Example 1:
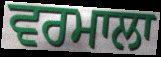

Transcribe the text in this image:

ਵਰਮਾਲਾ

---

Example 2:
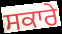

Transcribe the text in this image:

ਸਕਾਰੇ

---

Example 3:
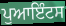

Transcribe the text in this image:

ਪੁਆਇੰਟਸ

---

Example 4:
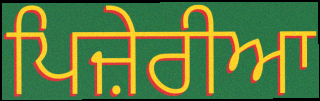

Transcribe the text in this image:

ਪਿਜ਼ੇਰੀਆ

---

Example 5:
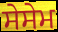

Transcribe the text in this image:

ਸੇਸੇਮ